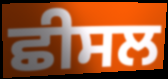
ਛੀਸਲ